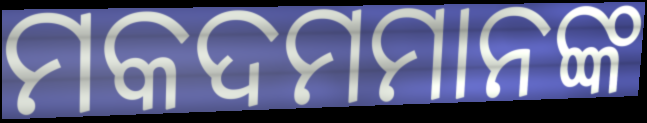
ମକଦମମାନଙ୍କ